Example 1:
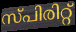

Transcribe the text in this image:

സ്പിരിറ്റ്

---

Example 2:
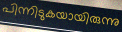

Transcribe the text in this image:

പിന്നിടുകയായിരുന്നു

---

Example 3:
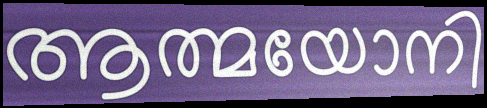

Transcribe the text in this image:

ആത്മയോനി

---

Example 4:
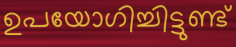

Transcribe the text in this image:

ഉപയോഗിച്ചിട്ടുണ്ട്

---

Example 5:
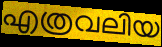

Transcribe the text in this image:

എത്രവലിയ